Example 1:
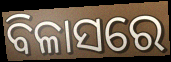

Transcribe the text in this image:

ବିଳାସରେ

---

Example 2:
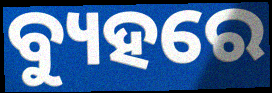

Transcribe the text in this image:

ବ୍ୟୁହରେ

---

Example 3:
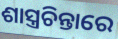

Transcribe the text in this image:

ଶାସ୍ତ୍ରଚିନ୍ତାରେ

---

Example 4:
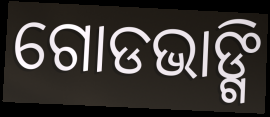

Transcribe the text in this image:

ଗୋଡଭାଙ୍ଗି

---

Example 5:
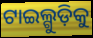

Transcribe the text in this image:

ଟାଇଲ୍ଗୁଡ଼ିକୁ